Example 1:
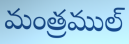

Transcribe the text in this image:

మంత్రముల్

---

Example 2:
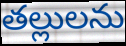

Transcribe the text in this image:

తల్లులను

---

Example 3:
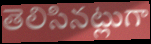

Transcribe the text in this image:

తెలిసినట్లుగా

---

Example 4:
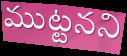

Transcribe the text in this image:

ముట్టనని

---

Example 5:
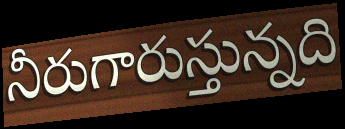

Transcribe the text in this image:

నీరుగారుస్తున్నది